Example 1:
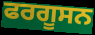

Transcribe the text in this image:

ਫਰਗੂਸਨ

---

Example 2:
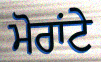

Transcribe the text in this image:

ਮੋਰਾਂਟੇ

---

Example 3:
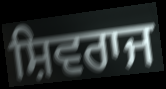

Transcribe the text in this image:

ਸ਼ਿਵਰਾਜ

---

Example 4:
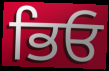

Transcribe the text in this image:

ਭਿਓ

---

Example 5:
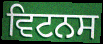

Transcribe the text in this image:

ਵਿਟਨਸ